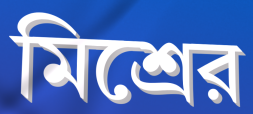
মিশ্রের